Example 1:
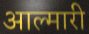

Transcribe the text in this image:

आल्मारी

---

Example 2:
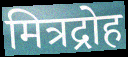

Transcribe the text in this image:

मित्रद्रोह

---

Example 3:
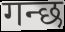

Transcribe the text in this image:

गन्छ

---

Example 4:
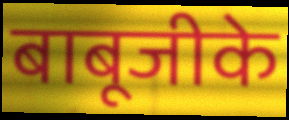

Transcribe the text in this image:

बाबूजीके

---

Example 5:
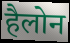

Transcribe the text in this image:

हैलोन